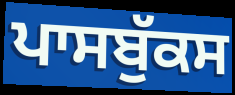
ਪਾਸਬੁੱਕਸ